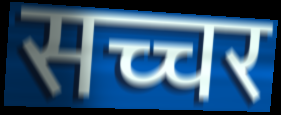
सच्चर